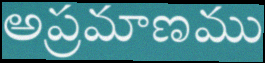
అప్రమాణము